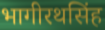
भागीरथसिंह